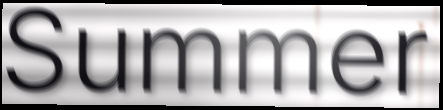
Summer